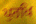
ਪੁਰਖਿ